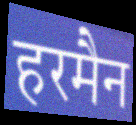
हरमैन